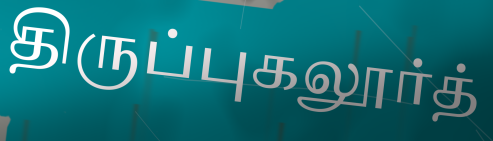
திருப்புகலூர்த்